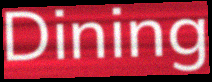
Dining